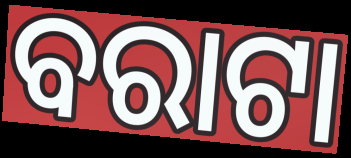
ବରାଟା